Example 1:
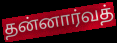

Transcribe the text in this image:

தன்னார்வத்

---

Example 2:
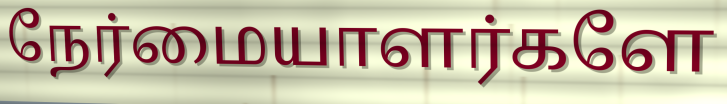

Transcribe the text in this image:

நேர்மையாளர்களே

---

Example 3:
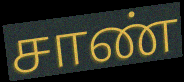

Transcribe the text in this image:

சாண்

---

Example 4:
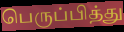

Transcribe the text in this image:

பெருப்பித்து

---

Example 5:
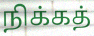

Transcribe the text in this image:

நிக்கத்